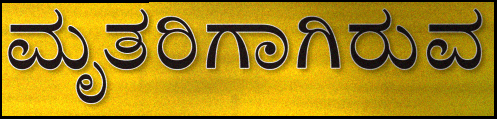
ಮೃತರಿಗಾಗಿರುವ